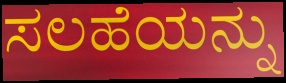
ಸಲಹೆಯನ್ನು